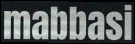
mabbasi